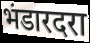
भंडारदरा